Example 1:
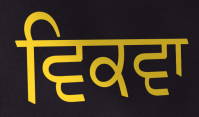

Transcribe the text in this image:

ਵਿਕਵਾ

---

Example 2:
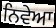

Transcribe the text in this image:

ਨਿਵੇਆ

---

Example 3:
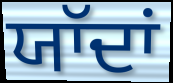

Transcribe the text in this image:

ਯਾੱਦਾਂ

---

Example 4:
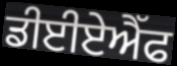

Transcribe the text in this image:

ਡੀਈਏਐੱਫ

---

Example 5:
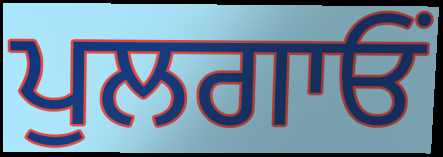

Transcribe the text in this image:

ਪੁਲਗਾਓਂ